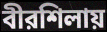
বীরশিলায়